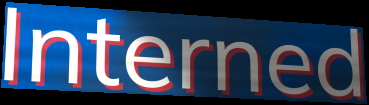
Interned